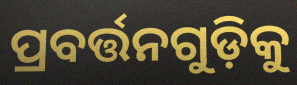
ପ୍ରବର୍ତ୍ତନଗୁଡ଼ିକୁ